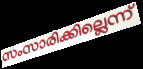
സംസാരിക്കില്ലെന്ന്